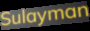
Sulayman